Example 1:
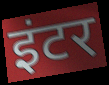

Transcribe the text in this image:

इंटर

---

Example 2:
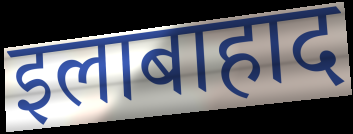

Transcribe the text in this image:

इलाबाहाद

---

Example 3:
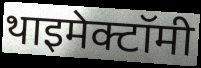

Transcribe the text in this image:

थाइमेक्टॉमी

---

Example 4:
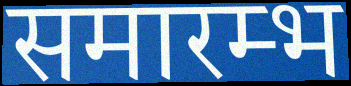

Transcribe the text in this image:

समारम्भ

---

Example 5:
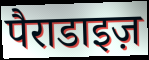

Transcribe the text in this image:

पैराडाइज़